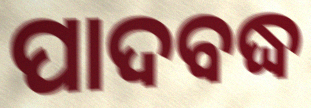
ପାଦବଦ୍ଧ